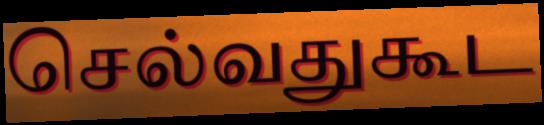
செல்வதுகூட